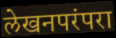
लेखनपरंपरा